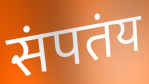
संपतंय